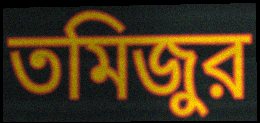
তমিজুর